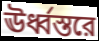
ঊর্ধ্বস্তরে